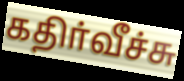
கதிர்வீச்சு